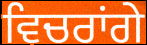
ਵਿਚਰਾਂਗੇ